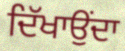
ਦਿੱਖਾਉਂਦਾ